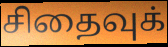
சிதைவுக்